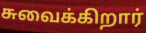
சுவைக்கிறார்